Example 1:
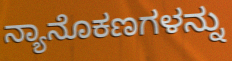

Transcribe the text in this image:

ನ್ಯಾನೊಕಣಗಳನ್ನು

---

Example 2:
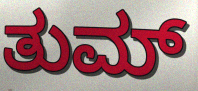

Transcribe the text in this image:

ತುಮ್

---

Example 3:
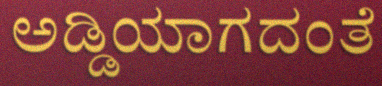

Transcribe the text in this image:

ಅಡ್ಡಿಯಾಗದಂತೆ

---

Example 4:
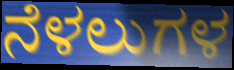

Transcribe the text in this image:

ನೆಳಲುಗಳ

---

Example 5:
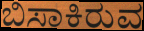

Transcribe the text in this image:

ಬಿಸಾಕಿರುವ